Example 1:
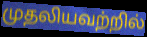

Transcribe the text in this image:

முதலியவற்றில்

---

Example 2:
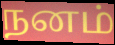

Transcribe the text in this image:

நனம்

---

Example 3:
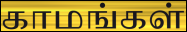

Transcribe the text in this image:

காமங்கள்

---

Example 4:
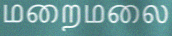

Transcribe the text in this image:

மறைமலை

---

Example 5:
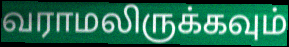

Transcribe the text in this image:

வராமலிருக்கவும்